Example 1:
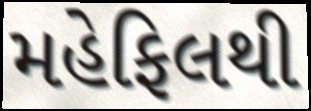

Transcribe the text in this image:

મહેફિલથી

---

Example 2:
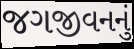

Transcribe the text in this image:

જગજીવનનું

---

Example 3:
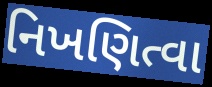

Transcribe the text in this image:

નિખણિત્વા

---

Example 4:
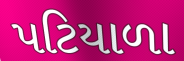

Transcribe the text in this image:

પટિયાળા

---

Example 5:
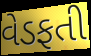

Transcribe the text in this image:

વેડફતી